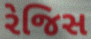
રેજિસ